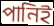
পানিই